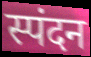
स्पंदन